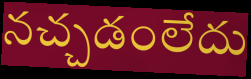
నచ్చడంలేదు